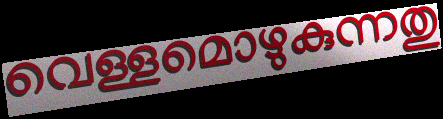
വെള്ളമൊഴുകുന്നതു